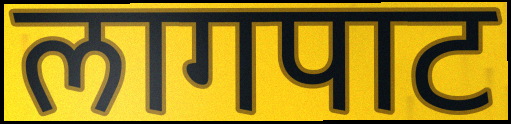
लागपाट